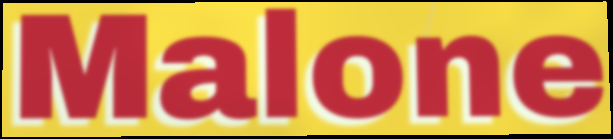
Malone